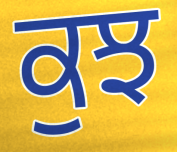
ਕੁਝ